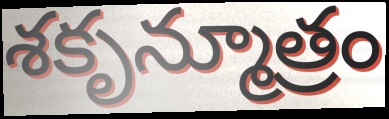
శకృన్మూత్రం